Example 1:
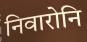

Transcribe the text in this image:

निवारोनि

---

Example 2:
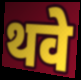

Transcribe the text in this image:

थवे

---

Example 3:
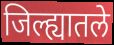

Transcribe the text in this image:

जिल्ह्यातले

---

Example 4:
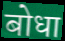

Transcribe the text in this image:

बोधा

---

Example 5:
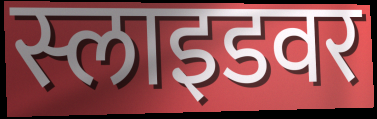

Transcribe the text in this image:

स्‍लाइडवर